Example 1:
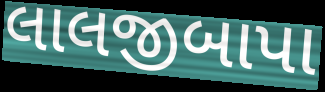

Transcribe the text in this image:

લાલજીબાપા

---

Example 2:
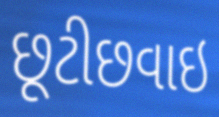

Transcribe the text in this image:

છૂટીછવાઇ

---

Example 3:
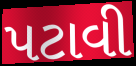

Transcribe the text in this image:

પટાવી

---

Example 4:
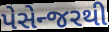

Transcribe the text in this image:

પેસેન્જરથી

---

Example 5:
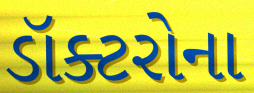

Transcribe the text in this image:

ડૉક્ટરોના